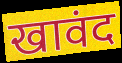
खावंद